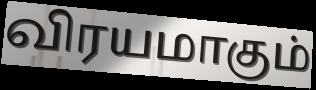
விரயமாகும்